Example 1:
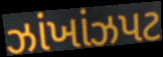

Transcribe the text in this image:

ઝાંખાંઝપટ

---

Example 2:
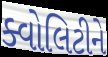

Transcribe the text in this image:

ક્વોલિટીને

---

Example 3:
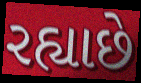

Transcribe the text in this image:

રહ્યાછે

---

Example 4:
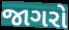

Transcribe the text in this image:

જાગરો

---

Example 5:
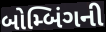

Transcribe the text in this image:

બોમ્બિંગની